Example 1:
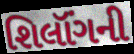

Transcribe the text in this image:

શિલૉંગની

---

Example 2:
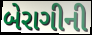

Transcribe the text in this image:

બેરાગીની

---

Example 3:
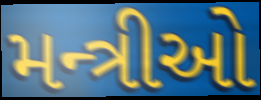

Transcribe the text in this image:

મન્ત્રીઓ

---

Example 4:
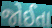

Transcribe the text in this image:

જોઈતા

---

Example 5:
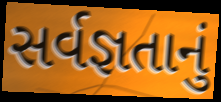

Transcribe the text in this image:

સર્વજ્ઞતાનું